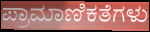
ಪ್ರಾಮಾಣಿಕತೆಗಳು